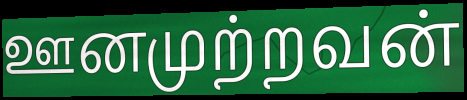
ஊனமுற்றவன்